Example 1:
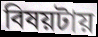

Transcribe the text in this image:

বিষয়টায়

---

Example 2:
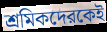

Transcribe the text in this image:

শ্রমিকদেরকেই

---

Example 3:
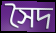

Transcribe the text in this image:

সৈদ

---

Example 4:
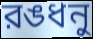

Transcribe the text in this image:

রঙধনু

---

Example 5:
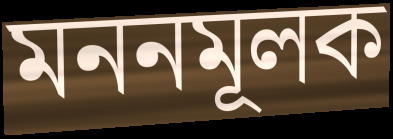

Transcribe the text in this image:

মননমূলক